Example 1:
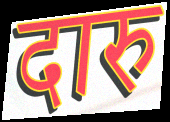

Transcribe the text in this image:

दारु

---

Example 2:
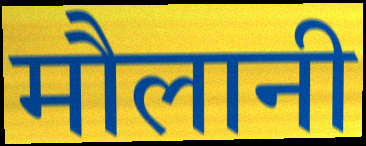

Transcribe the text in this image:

मौलानी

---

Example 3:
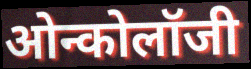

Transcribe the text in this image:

ओन्कोलॉजी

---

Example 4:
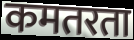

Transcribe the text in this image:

कमतरता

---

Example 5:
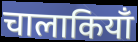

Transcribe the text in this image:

चालाकियाँ